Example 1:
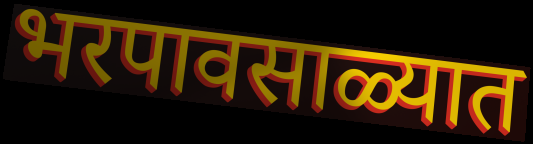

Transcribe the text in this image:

भरपावसाळ्यात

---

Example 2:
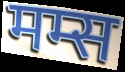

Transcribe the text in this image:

मम्स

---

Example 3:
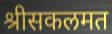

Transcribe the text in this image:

श्रीसकलमत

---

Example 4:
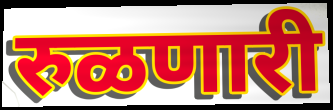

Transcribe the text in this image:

रुळणारी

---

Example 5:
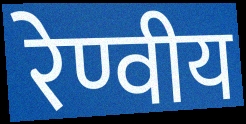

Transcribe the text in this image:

रेण्वीय